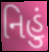
નિહું